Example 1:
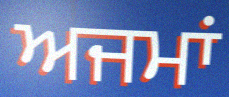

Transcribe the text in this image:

ਅਜਮਾਂ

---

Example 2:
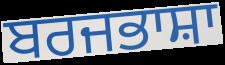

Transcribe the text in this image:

ਬਰਜਭਾਸ਼ਾ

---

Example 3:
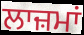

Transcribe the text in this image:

ਲਾਜ਼ਮਾਂ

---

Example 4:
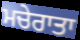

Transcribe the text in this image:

ਮਚੇਰਾਤਾ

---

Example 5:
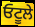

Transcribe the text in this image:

ਓਟੂਲੇ